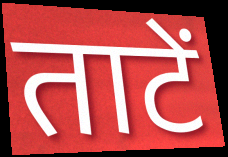
ताटें